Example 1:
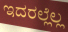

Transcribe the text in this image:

ಇದರಲ್ಲೆಲ್ಲ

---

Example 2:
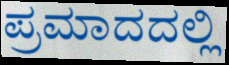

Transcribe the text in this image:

ಪ್ರಮಾದದಲ್ಲಿ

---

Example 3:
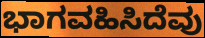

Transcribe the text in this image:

ಭಾಗವಹಿಸಿದೆವು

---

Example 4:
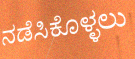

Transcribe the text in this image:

ನಡೆಸಿಕೊಳ್ಳಲು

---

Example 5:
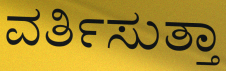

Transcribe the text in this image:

ವರ್ತಿಸುತ್ತಾ